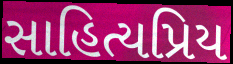
સાહિત્યપ્રિય